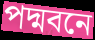
পদ্মবনে